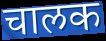
चालक